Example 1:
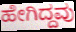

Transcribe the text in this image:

ಹೇಗಿದ್ದವು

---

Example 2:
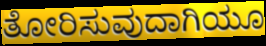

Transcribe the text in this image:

ತೋರಿಸುವುದಾಗಿಯೂ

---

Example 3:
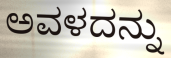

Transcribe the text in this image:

ಅವಳದನ್ನು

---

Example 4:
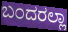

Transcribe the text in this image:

ಬಂದರಲ್ಲಾ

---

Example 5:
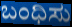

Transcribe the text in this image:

ಬಂಧಿಸು